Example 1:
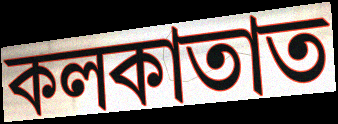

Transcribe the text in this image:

কলকাতাত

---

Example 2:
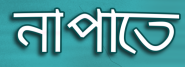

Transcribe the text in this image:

নাপাতে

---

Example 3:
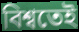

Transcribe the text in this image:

বিশ্বতেই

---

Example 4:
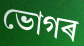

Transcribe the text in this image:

ভোগৰ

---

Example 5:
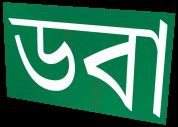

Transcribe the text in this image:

ডবা